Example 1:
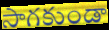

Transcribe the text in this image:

సాగకుండా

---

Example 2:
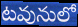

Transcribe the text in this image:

టవునులో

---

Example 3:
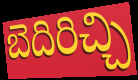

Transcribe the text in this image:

బెదిరిచ్చి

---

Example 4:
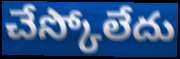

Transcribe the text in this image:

చేస్కోలేదు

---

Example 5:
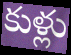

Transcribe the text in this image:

కుళ్లు